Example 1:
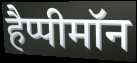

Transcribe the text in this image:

हैप्पीमॉन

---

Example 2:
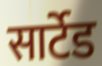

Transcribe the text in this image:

सार्टेड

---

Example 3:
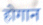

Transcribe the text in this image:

होगान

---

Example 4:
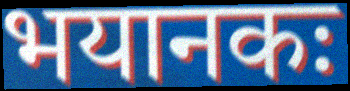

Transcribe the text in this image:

भयानकः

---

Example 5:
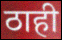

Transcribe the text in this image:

ठाही